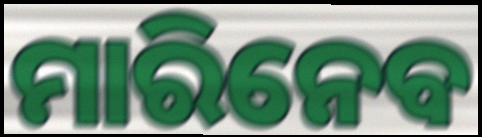
ମାରିନେବ